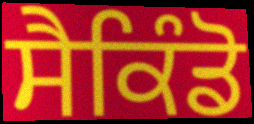
ਸੈਕਿੰਡੋ